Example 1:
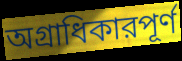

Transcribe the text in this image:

অগ্রাধিকারপূর্ণ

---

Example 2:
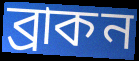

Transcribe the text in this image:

ব্রাকন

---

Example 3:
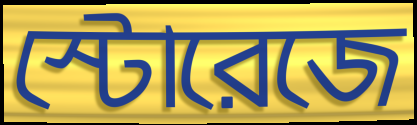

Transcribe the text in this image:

স্টোরেজে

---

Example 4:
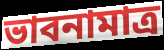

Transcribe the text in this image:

ভাবনামাত্র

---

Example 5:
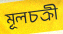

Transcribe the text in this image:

মূলচক্রী